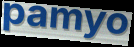
pamyo